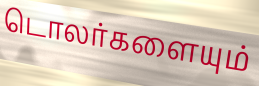
டொலர்களையும்